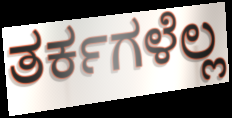
ತರ್ಕಗಳೆಲ್ಲ